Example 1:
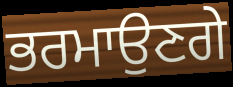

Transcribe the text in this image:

ਭਰਮਾਉਣਗੇ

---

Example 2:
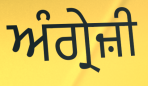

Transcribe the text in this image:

ਅੰਗ੍ਰੇਜ਼ੀ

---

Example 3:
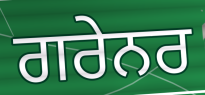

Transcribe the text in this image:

ਗਰੇਨਰ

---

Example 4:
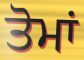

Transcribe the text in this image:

ਤੋਮਾਂ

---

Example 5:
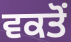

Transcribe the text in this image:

ਵਕਤੋਂ